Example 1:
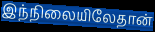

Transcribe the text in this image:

இந்நிலையிலேதான்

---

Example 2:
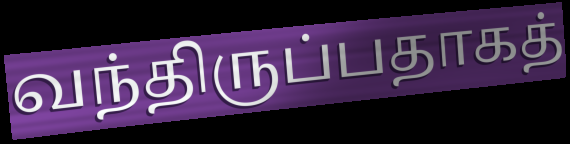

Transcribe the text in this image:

வந்திருப்பதாகத்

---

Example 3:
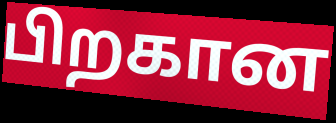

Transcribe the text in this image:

பிறகான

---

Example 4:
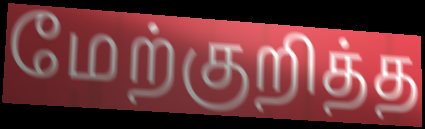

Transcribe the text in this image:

மேற்குறித்த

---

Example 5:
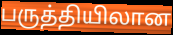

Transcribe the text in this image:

பருத்தியிலான